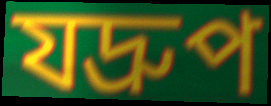
যদ্রুপ